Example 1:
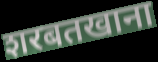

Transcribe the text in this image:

शरबतखाना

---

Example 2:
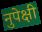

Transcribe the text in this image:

नुपेक्षी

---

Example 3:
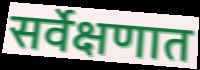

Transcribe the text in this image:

सर्वेक्षणात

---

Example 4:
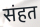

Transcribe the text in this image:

संहत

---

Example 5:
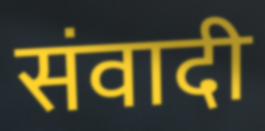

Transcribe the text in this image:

संवादी